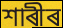
শাৰীৰ